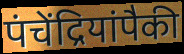
पंचेंद्रियांपैकी